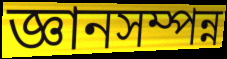
জ্ঞানসম্পন্ন